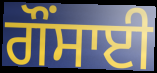
ਗੌਂਸਾਈ